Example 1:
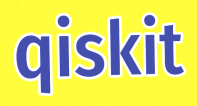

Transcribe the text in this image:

qiskit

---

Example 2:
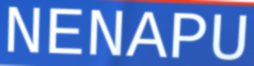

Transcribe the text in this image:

NENAPU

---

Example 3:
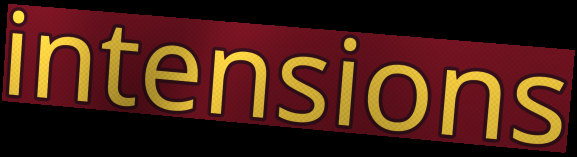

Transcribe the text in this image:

intensions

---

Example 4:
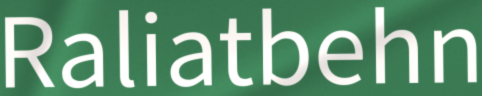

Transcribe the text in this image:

Raliatbehn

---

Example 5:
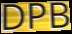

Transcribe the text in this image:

DPB